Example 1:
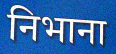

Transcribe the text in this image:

निभाना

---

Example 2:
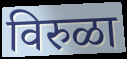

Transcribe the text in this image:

विरुळा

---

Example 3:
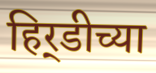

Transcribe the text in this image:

हिर्डीच्या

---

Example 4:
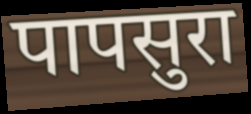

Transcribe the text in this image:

पापसुरा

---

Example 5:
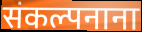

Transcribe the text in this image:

संकल्पनाना